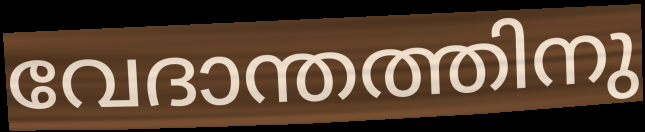
വേദാന്തത്തിനു